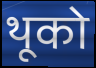
थूको